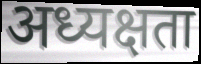
अध्यक्षता